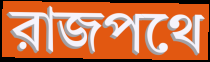
রাজপথে